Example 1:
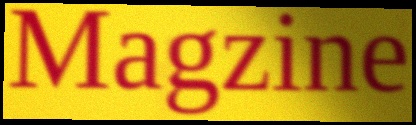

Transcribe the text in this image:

Magzine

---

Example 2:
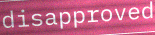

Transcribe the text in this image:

disapproved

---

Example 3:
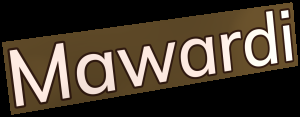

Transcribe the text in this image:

Mawardi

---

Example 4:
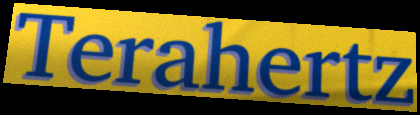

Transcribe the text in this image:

Terahertz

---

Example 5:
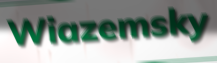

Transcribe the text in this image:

Wiazemsky